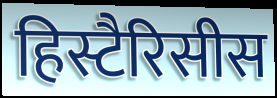
हिस्टैरिसीस